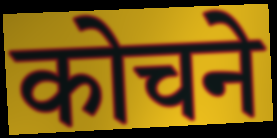
कोचने